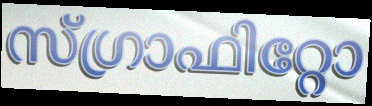
സ്ഗ്രാഫിറ്റോ